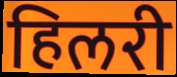
हिलरी